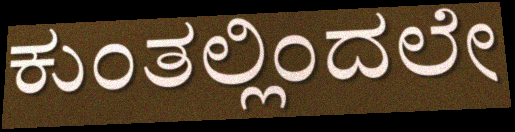
ಕುಂತಲ್ಲಿಂದಲೇ